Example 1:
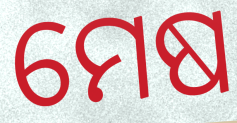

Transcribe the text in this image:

ମେଷ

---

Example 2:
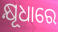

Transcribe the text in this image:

କ୍ଷୂଧାରେ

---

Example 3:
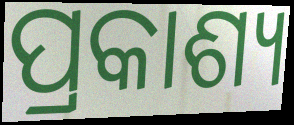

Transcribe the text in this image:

ପ୍ରକାଶ୍ୟ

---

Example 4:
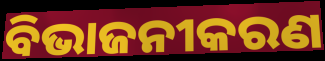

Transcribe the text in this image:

ବିଭାଜନୀକରଣ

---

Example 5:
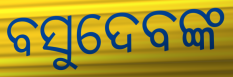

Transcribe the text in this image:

ବସୁଦେବଙ୍କ